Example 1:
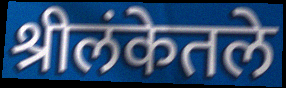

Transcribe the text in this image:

श्रीलंकेतले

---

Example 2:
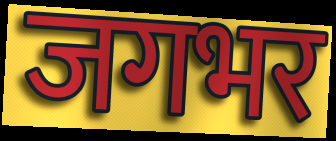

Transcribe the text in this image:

जगभर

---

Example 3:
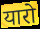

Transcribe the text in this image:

यारो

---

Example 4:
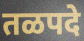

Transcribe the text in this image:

तळपदे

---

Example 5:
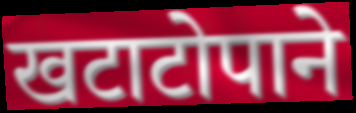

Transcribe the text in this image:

खटाटोपाने